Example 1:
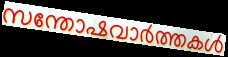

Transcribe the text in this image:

സന്തോഷവാർത്തകൾ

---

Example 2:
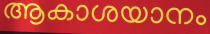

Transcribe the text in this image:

ആകാശയാനം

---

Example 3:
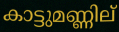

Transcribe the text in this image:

കാട്ടുമണ്ണില്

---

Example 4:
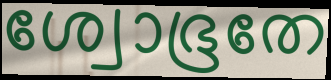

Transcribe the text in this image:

ശ്വോഭൂതേ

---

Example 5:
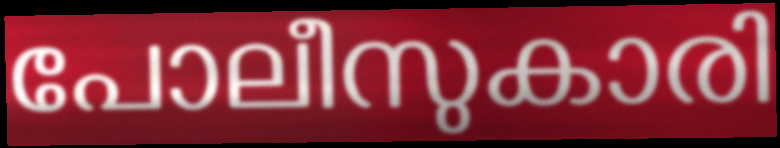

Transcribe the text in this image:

പോലീസുകാരി